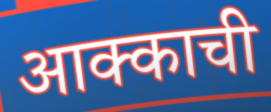
आक्काची